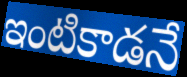
ఇంటికాడనే